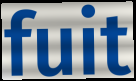
fuit